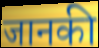
जानकी